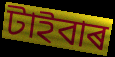
টাইবাৰ